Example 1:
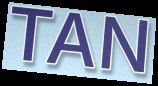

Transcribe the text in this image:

TAN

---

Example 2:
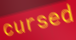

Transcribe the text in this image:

cursed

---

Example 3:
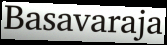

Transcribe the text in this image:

Basavaraja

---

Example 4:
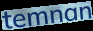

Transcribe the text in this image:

temnan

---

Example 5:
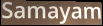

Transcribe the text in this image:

Samayam